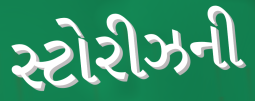
સ્ટોરીઝની